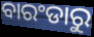
ବାରଂଡାରୁ